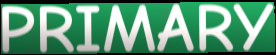
PRIMARY